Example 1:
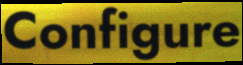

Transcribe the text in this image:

Configure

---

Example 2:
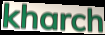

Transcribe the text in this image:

kharch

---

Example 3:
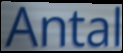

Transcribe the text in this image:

Antal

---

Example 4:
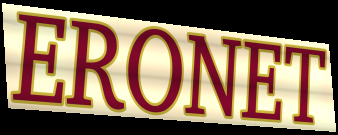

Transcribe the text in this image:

ERONET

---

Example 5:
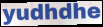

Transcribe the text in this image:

yudhdhe